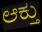
ಆಕ್ತು